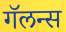
गॅलन्स